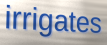
irrigates